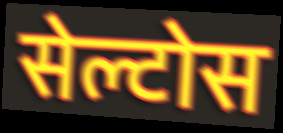
सेल्टोस